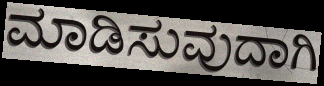
ಮಾಡಿಸುವುದಾಗಿ